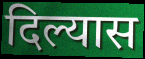
दिल्यास